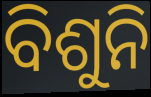
ବିଶୁନି